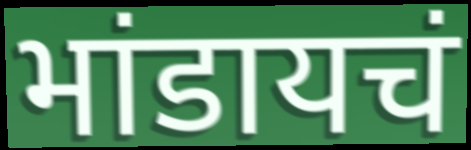
भांडायचं